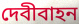
দেবীবাহন